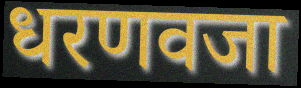
धरणवजा